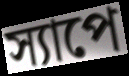
স্যাপে